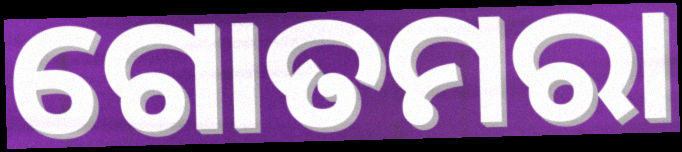
ଗୋତମରା